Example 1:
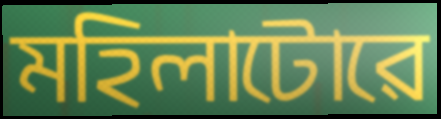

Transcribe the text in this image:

মহিলাটোৱে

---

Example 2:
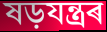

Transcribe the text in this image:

ষড়যন্ত্ৰৰ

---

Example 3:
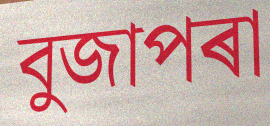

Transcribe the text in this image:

বুজাপৰা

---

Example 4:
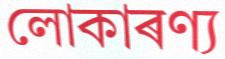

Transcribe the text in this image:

লোকাৰণ্য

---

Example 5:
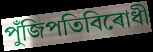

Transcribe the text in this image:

পুঁজিপতিবিৰোধী